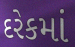
દરેકમાં